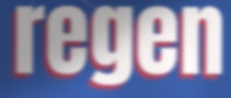
regen